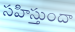
సహిస్తుందా